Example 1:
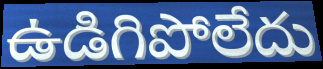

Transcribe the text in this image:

ఉడిగిపోలేదు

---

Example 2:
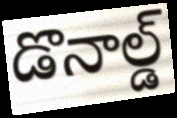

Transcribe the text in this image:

డొనాల్డ్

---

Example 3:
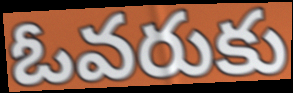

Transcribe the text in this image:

ఓవరుకు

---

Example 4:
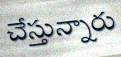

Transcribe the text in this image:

చేస్తున్నారు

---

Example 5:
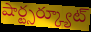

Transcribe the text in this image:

షార్ట్సర్క్యూట్